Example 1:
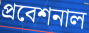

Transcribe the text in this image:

প্রবেশনাল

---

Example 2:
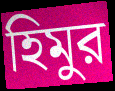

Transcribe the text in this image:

হিমুর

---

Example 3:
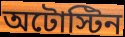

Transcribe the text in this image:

অটোস্টিন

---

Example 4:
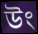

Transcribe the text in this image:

উং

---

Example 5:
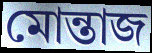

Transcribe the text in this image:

মোন্তাজ